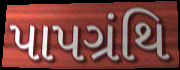
પાપગ્રંથિ